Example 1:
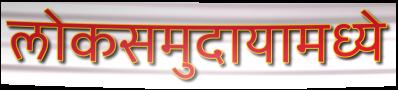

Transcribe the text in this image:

लोकसमुदायामध्ये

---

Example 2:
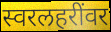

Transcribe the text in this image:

स्वरलहरींवर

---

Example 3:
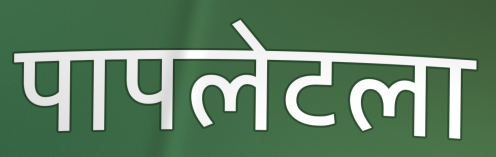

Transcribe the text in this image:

पापलेटला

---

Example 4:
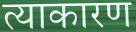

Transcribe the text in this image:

त्याकारण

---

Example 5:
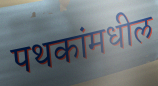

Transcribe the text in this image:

पथकांमधील